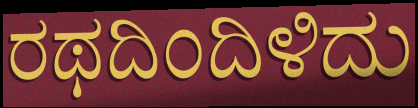
ರಥದಿಂದಿಳಿದು